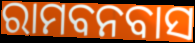
ରାମବନବାସ